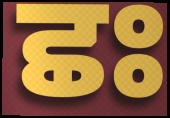
ਛਃ